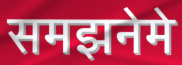
समझनेमे